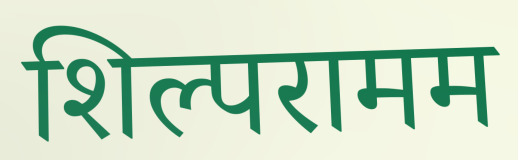
शिल्परामम